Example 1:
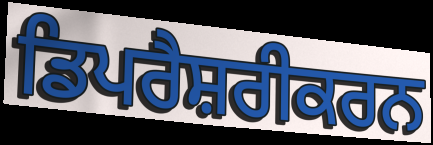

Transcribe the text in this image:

ਡਿਪਰੈਸ਼ਰੀਕਰਨ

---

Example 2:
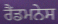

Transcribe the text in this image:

ਰੈਂਡਮਨੇਸ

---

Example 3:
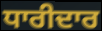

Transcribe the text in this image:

ਧਾਰੀਦਾਰ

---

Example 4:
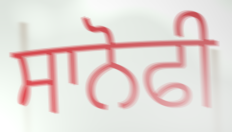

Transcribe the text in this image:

ਸਾਨੋਫੀ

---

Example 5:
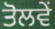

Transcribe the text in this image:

ਤੋਲਵੇਂ